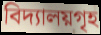
বিদ্যালয়গৃহ